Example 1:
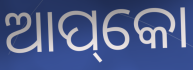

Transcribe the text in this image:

ଆପ୍‌କୋ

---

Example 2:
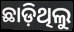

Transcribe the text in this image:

ଛାଡ଼ିଥିଲୁ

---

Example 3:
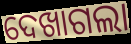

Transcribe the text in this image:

ଦେଖାଗଲା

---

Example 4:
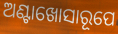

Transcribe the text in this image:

ଅଣ୍ଟାଖୋସାରୂପେ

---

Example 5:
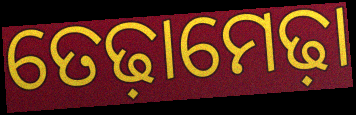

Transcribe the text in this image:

ତେଢ଼ାମେଢ଼ା